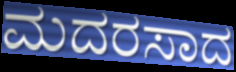
ಮದರಸಾದ